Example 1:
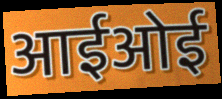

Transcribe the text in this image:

आईओई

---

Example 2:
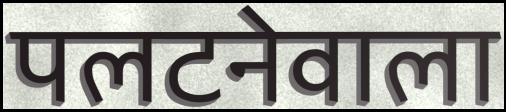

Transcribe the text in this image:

पलटनेवाला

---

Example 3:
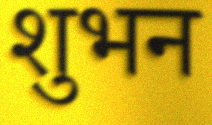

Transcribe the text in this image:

शुभन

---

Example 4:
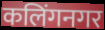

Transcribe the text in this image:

कलिंगनगर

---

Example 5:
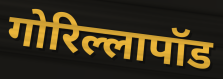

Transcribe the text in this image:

गोरिल्लापॉड